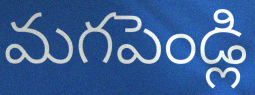
మగపెండ్లి